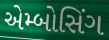
એમ્બોસિંગ